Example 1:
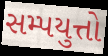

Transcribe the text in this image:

સમ્પયુત્તો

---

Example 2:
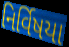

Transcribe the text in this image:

નિર્વિષયા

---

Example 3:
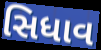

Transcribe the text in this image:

સિધાવ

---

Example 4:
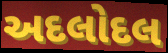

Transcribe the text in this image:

અદલોદલ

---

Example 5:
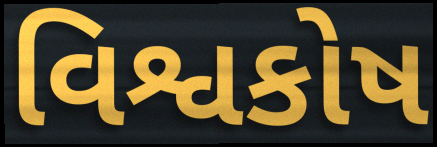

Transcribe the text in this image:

વિશ્વકોષ